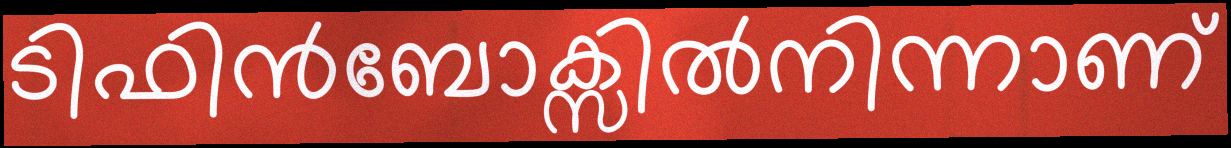
ടിഫിൻബോക്സിൽനിന്നാണ്